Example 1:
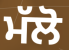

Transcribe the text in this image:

ਮੱਲੋ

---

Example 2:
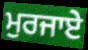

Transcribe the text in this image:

ਮੁਰਜਾਏ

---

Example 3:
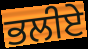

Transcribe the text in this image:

ਭਲੀਏ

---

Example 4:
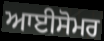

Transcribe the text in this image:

ਆਈਸੋਮਰ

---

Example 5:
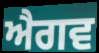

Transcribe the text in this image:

ਐਗਵ